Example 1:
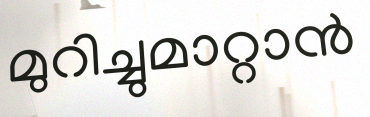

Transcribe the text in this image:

മുറിച്ചുമാറ്റാൻ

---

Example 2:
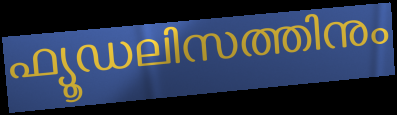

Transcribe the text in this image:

ഫ്യൂഡലിസത്തിനും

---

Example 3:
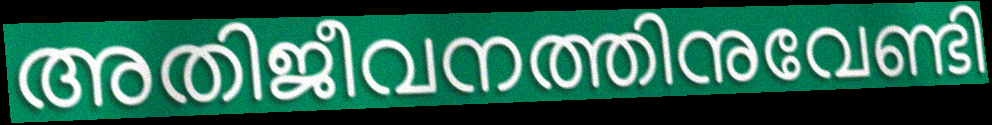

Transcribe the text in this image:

അതിജീവനത്തിനുവേണ്ടി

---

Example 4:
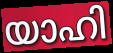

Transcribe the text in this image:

യാഹി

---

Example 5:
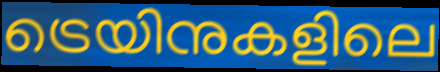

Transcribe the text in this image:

ട്രെയിനുകളിലെ